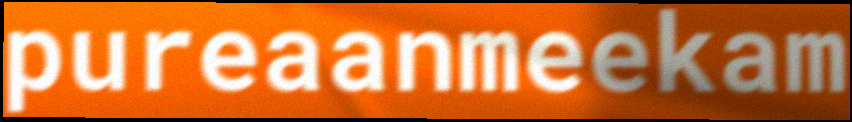
pureaanmeekam